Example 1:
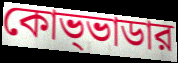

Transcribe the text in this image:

কোভ্ভাডার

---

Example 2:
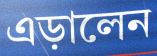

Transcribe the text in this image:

এড়ালেন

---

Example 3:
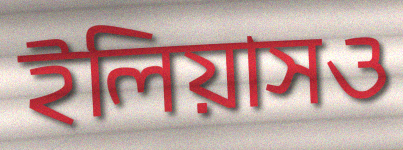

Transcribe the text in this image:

ইলিয়াসও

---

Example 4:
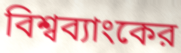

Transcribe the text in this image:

বিশ্বব্যাংকের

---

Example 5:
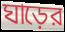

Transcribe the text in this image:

ঘাড়ের